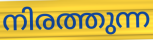
നിരത്തുന്ന